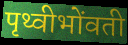
पृथ्वीभोंवती